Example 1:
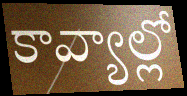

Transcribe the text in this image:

కావ్యాల్లో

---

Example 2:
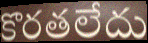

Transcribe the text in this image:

కొరతలేదు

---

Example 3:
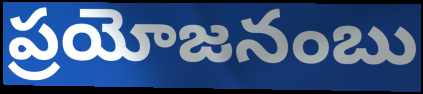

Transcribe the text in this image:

ప్రయోజనంబు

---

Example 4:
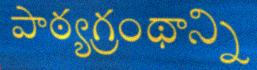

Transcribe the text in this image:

పాఠ్యగ్రంథాన్ని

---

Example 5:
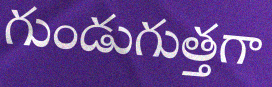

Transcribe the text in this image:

గుండుగుత్తగా